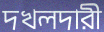
দখলদারী